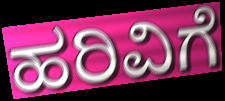
ಹರಿವಿಗೆ